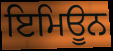
ਇਮਿਊਨ